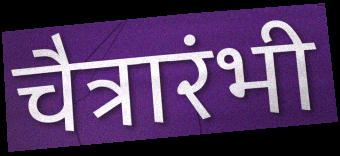
चैत्रारंभी